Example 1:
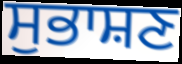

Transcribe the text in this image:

ਸੁਭਾਸ਼ਣ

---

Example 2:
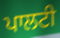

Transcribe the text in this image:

ਪਾਲਟੀ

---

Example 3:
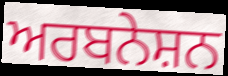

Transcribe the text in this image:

ਅਰਬਨੇਸ਼ਨ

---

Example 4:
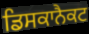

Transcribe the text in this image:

ਡਿਸਕਾਨੈਕਟ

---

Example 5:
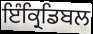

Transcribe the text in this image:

ਇੰਕ੍ਰਿਡਿਬਲ